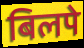
बिलपे